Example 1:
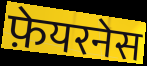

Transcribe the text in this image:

फ़ेयरनेस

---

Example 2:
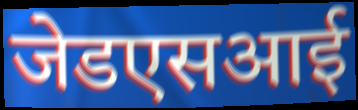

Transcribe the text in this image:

जेडएसआई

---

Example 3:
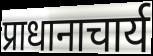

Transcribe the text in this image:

प्राधानाचार्य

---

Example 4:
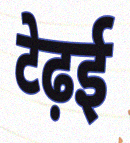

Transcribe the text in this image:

टेढ़ई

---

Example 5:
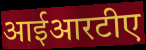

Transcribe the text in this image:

आईआरटीए